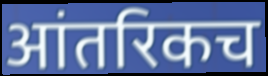
आंतरिकच